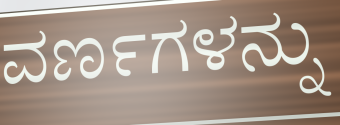
ವರ್ಣಗಳನ್ನು